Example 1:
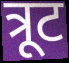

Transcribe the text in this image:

त्रूट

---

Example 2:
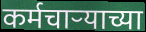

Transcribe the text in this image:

कर्मचाऱ्याच्या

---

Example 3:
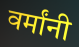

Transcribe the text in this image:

वर्मांनी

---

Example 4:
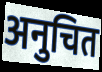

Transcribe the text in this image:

अनुचित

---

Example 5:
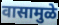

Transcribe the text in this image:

वासामुळे